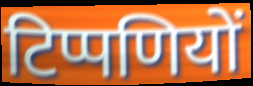
टिप्पणियों